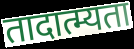
तादात्म्यता